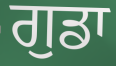
ਗੁਡਾ